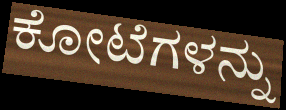
ಕೋಟೆಗಳನ್ನು